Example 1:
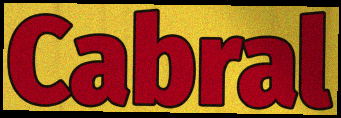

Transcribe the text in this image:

Cabral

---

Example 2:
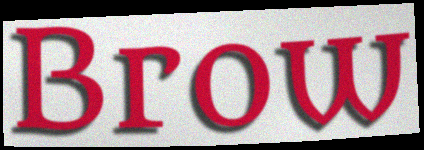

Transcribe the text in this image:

Brow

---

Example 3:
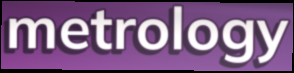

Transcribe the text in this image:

metrology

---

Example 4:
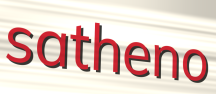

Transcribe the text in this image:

satheno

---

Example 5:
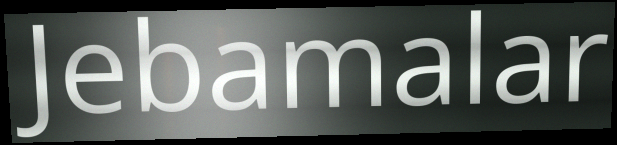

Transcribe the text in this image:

Jebamalar